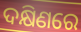
ଦକ୍ଷିଣରେ